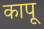
कापू